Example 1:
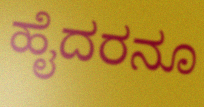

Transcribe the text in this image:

ಹೈದರನೂ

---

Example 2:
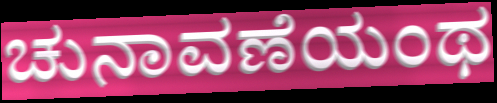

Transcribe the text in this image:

ಚುನಾವಣೆಯಂಥ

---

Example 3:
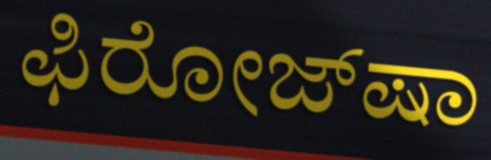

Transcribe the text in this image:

ಫಿರೋಜ್‌ಷಾ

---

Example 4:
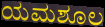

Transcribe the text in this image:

ಯಮಶೂಲ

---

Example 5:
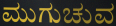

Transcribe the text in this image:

ಮುಗುಚುವ